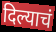
दिल्याचं